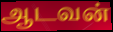
ஆடவன்